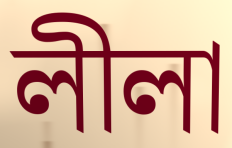
লীলা